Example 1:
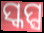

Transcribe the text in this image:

ସ୍କପ୍ସ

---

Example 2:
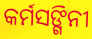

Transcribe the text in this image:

କର୍ମସଙ୍ଗିନୀ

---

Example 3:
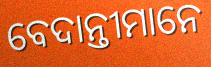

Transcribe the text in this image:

ବେଦାନ୍ତୀମାନେ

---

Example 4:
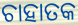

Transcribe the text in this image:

ଚାହାତକ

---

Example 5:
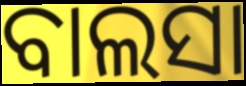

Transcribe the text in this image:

ବାଲସା